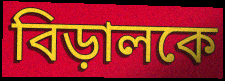
বিড়ালকে